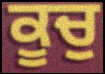
ਕੂਚੁ